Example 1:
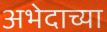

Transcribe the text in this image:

अभेदाच्या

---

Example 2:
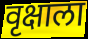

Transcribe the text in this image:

वृक्षाला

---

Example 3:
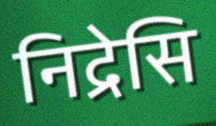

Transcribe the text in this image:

निद्रेसि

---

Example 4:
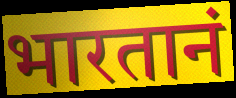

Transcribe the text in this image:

भारतानं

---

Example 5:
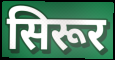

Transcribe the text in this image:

सिरूर